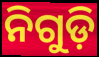
ନିଗୁଡ଼ି